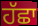
ਹੱਛਾ